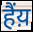
हैंय़